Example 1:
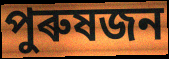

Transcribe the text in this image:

পুৰুষজন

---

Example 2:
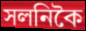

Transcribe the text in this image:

সলনিকৈ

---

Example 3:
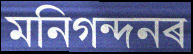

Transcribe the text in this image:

মনিগন্দনৰ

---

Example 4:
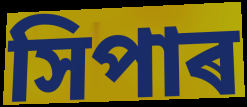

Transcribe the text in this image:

সিপাৰ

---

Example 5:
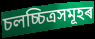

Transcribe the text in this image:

চলচ্চিত্ৰসমূহৰ